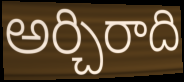
అర్చిరాది